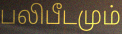
பலிபீடமும்